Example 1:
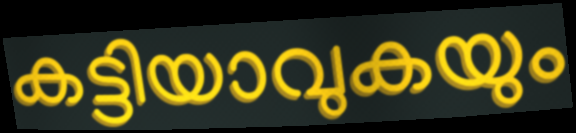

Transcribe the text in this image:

കട്ടിയാവുകയും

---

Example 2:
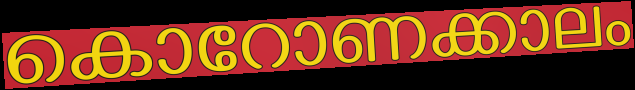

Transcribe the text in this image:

കൊറോണക്കാലം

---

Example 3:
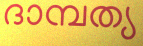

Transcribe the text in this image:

ദാമ്പത്യ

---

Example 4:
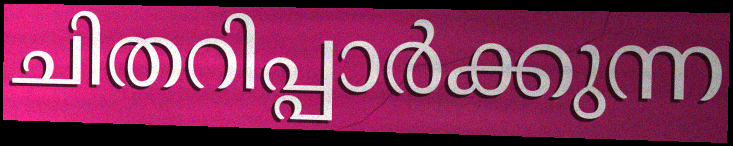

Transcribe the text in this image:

ചിതറിപ്പാർക്കുന്ന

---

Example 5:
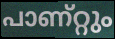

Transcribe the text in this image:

പാണ്റ്റും